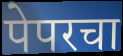
पेपरचा